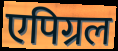
एपिग्रल